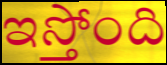
ఇస్తోంది